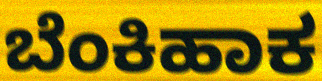
ಬೆಂಕಿಹಾಕ